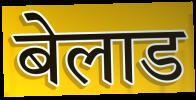
बेलाड